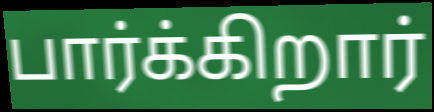
பார்க்கிறார்